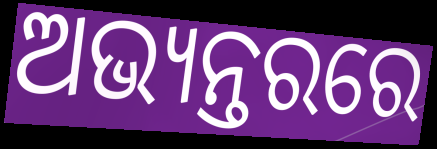
ଅଭ୍ୟନ୍ତରରେ